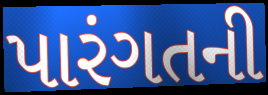
પારંગતની